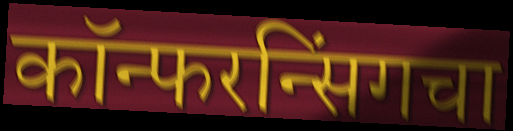
कॉन्फरन्सिंगचा